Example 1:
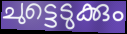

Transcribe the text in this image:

ചുട്ടെടുക്കും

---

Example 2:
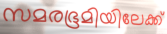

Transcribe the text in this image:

സമരഭൂമിയിലേക്ക്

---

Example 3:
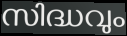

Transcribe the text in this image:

സിദ്ധവും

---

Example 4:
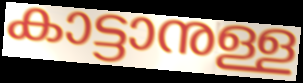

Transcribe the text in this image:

കാട്ടാനുള്ള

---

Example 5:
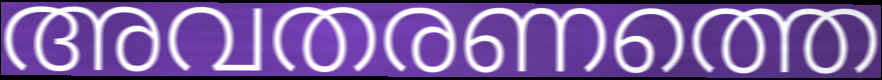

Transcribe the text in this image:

അവതരണത്തെ